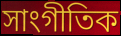
সাংগীতিক